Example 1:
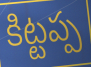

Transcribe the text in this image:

కిట్టప్ప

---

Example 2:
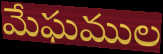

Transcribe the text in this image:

మేఘముల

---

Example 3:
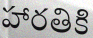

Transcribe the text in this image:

హారతికి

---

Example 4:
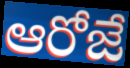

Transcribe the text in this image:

ఆరోజే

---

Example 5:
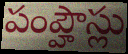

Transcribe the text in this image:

పంప్హౌస్లు